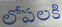
లోపలకి